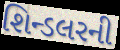
શિન્ડલરની